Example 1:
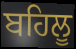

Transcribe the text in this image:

ਬਹਿਲੂ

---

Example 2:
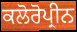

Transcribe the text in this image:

ਕਲੋਰੋਪ੍ਰੀਨ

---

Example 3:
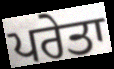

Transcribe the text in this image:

ਪਰੇਤਾ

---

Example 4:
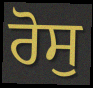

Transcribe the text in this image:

ਰੋਸੁ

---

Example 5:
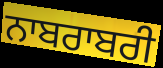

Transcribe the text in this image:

ਨਾਬਰਾਬਰੀ